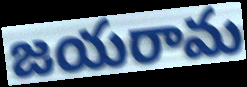
జయరామ